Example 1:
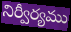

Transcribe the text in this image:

నిర్వీర్యము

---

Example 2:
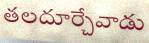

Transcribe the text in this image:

తలదూర్చేవాడు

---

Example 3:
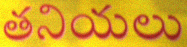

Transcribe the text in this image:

తనియలు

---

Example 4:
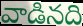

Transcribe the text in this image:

వాడినది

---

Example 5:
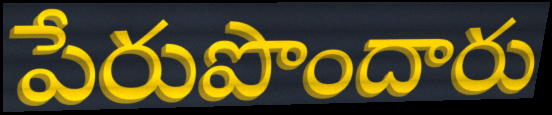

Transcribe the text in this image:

పేరుపొందారు